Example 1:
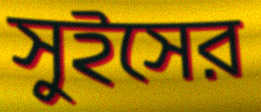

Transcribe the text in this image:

সুইসের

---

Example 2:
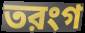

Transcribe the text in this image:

তরংগ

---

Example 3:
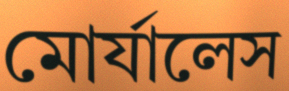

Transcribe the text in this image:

মোর্যালেস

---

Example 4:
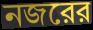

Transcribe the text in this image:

নজরের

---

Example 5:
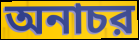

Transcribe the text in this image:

অনাচর